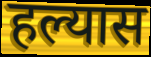
हल्यास